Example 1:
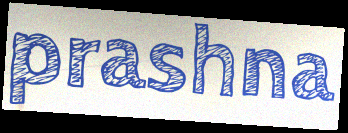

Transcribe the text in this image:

prashna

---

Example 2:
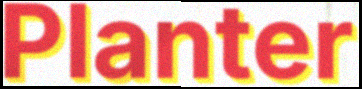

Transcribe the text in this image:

Planter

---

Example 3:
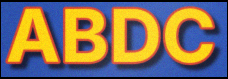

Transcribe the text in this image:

ABDC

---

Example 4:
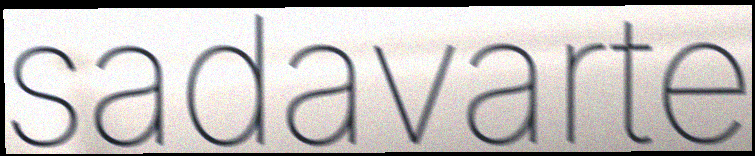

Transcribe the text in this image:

sadavarte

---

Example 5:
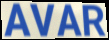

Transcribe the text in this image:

AVAR